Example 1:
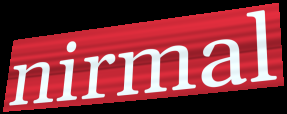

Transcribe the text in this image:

nirmal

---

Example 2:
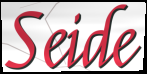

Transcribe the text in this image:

Seide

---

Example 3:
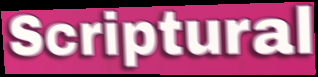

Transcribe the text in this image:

Scriptural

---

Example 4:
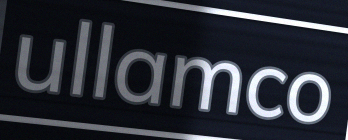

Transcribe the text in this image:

ullamco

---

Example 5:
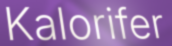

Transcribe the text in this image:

Kalorifer